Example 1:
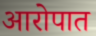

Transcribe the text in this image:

आरोपात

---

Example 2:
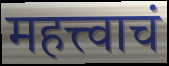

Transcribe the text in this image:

महत्त्वाचं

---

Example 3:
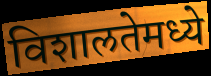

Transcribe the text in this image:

विशालतेमध्ये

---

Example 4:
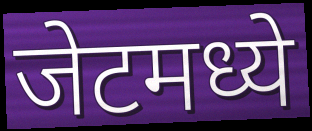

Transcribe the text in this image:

जेटमध्ये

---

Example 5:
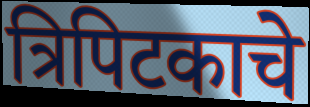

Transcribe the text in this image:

त्रिपिटकाचे